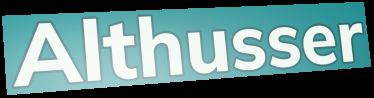
Althusser